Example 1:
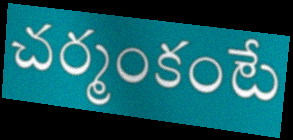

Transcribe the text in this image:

చర్మంకంటే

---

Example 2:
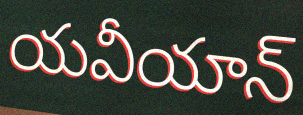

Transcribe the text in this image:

యవీయాన్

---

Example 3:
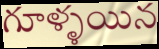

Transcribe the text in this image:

గూళ్ళయిన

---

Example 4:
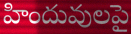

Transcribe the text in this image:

హిందువులపై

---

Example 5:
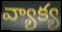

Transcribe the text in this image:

వ్యాక్య